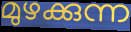
മുഴക്കുന്ന